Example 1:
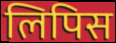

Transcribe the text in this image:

लिपिस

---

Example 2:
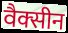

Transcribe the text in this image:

वैक्‍सीन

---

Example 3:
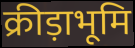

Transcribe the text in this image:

क्रीड़ाभूमि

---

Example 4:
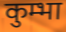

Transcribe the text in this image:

कुम्भा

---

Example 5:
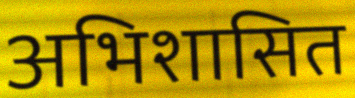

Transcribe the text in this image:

अभिशासित